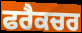
ਫਰੈਕਚਰ